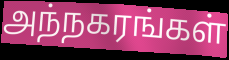
அந்நகரங்கள்